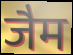
जैम